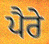
ਪੈਰੇ